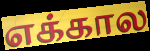
எக்கால